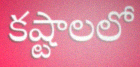
కష్టాలలో